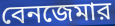
বেনজেমার